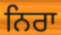
ਨਿਰਾ